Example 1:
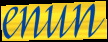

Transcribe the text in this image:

enun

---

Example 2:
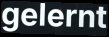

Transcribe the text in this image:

gelernt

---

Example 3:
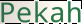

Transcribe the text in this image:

Pekah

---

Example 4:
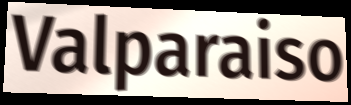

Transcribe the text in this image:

Valparaiso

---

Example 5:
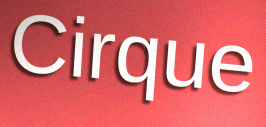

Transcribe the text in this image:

Cirque